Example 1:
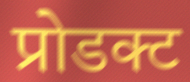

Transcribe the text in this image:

प्रोडक्ट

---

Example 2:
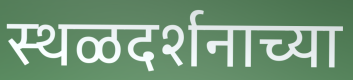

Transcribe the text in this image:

स्थळदर्शनाच्या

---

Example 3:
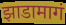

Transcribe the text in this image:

झाडामागं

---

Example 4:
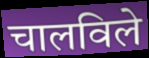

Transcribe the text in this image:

चालविले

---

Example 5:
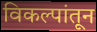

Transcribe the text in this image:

विकल्पांतून